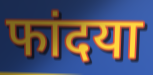
फांदया